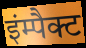
इंम्पैक्ट